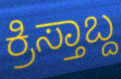
ಕ್ರಿಸ್ತಾಬ್ದ